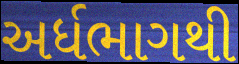
અર્ધભાગથી